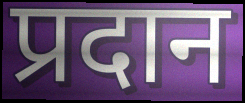
प्रदान